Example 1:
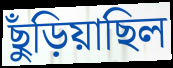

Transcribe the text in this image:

ছুঁড়িয়াছিল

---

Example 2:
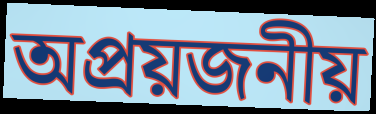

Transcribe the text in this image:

অপ্রয়জনীয়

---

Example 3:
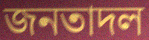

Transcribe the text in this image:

জনতাদল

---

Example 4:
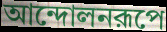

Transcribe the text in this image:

আন্দোলনরূপে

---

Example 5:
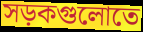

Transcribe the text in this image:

সড়কগুলোতে